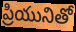
ప్రియునితో